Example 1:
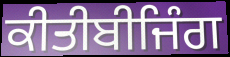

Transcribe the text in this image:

ਕੀਤੀਬੀਜਿੰਗ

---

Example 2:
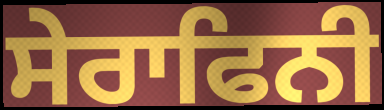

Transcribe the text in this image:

ਸੇਰਾਫਿਨੀ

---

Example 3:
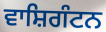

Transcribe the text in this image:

ਵਾਸ਼ਿਗੰਟਨ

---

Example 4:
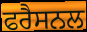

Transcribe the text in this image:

ਫਰੈਸਨਲ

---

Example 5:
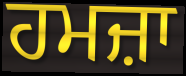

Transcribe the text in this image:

ਹਮਜ਼ਾ